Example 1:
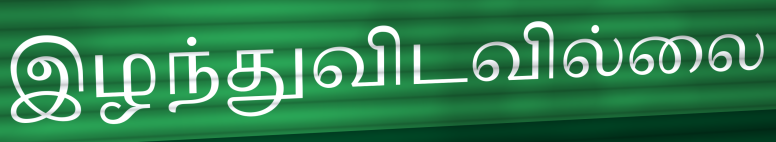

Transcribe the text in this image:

இழந்துவிடவில்லை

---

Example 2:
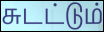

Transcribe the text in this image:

சுடட்டும்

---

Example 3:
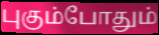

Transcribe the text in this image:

புகும்போதும்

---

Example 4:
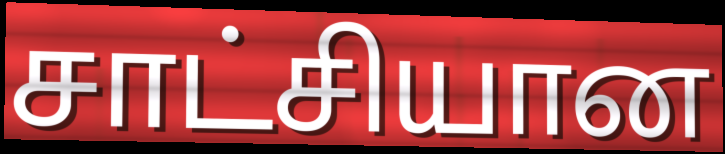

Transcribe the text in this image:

சாட்சியான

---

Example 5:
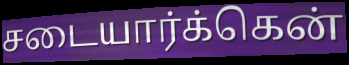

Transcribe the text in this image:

சடையார்க்கென்